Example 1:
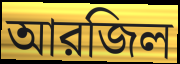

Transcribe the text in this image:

আরজিল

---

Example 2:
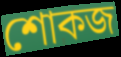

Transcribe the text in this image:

শোকজ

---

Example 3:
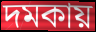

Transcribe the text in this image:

দমকায়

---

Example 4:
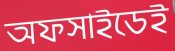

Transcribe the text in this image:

অফসাইডেই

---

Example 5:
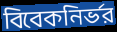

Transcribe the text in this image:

বিবেকনির্ভর